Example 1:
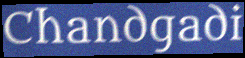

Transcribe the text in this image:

Chandgadi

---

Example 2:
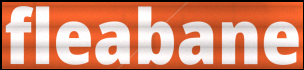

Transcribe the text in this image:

fleabane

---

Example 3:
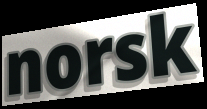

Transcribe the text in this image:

norsk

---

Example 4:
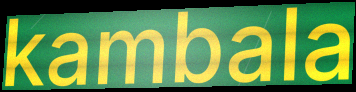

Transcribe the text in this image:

kambala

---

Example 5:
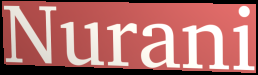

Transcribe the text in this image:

Nurani